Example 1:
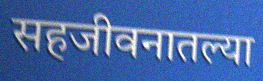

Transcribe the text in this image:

सहजीवनातल्या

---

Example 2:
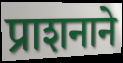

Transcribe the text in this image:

प्राशनाने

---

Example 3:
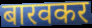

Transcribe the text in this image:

बारवकर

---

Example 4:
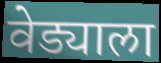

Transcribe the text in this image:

वेड्याला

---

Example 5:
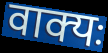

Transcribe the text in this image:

वाक्यः